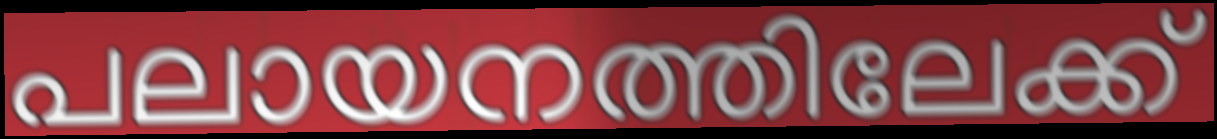
പലായനത്തിലേക്ക്